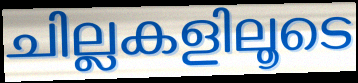
ചില്ലകളിലൂടെ